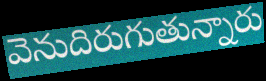
వెనుదిరుగుతున్నారు